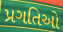
પ્રગતિઓ